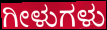
ಗೀಳುಗಳು